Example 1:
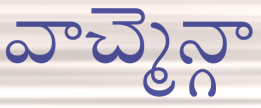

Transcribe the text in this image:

వాచ్మెన్గా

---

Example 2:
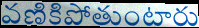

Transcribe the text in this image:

వణికిపోతుంటారు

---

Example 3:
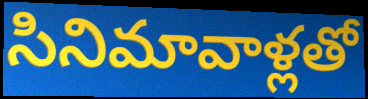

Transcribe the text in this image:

సినిమావాళ్లతో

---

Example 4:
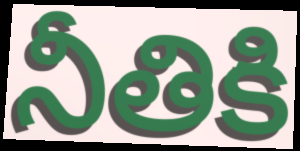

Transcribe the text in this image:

నీతికి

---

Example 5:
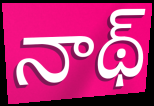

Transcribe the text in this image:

నాథ్